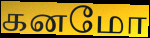
கனமோ